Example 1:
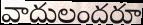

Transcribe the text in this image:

వాదులందరూ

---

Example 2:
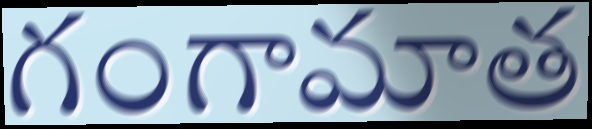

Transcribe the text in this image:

గంగామాత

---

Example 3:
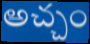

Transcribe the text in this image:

అచ్చం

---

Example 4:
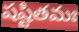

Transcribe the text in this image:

షష్టితమః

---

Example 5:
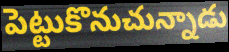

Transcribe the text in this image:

పెట్టుకొనుచున్నాడు